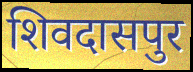
शिवदासपुर